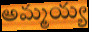
అమ్మయ్య